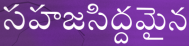
సహజసిద్దమైన